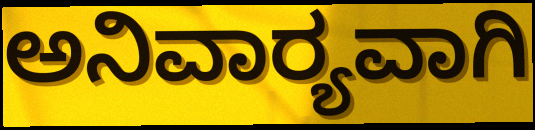
ಅನಿವಾರ‍್ಯವಾಗಿ